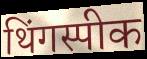
थिंगस्पीक